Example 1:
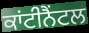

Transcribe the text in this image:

ਕਾਂਟੀਨੈਂਟਲ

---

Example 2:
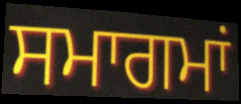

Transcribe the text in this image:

ਸਮਾਗਮਾਂ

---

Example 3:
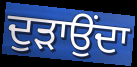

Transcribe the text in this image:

ਦੁੜਾਉਂਦਾ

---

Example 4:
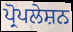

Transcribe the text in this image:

ਪ੍ਰੋਪਲੇਸ਼ਨ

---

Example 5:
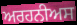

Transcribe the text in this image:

ਅਰਹਨੀਅਸ